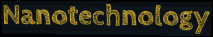
Nanotechnology